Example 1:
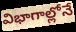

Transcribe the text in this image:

విభాగాల్లోనే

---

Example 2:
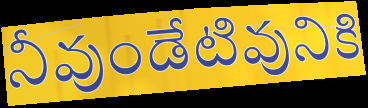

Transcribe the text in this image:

నీవుండేటివునికి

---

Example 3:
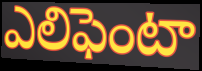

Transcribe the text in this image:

ఎలిఫెంటా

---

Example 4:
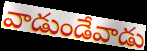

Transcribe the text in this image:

వాడుండేవాడు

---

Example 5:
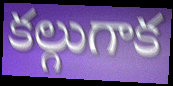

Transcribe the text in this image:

కల్గుగాక